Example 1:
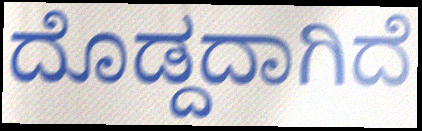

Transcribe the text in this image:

ದೊಡ್ದದಾಗಿದೆ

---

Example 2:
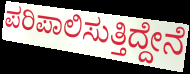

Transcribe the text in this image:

ಪರಿಪಾಲಿಸುತ್ತಿದ್ದೇನೆ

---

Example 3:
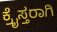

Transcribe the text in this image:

ಕ್ರೈಸ್ತರಾಗಿ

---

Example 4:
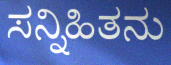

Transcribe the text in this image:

ಸನ್ನಿಹಿತನು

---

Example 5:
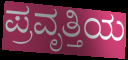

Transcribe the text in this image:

ಪ್ರವೃತ್ತಿಯ